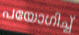
പയോഗിച്ച്